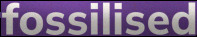
fossilised